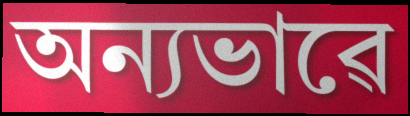
অন্যভাৱে